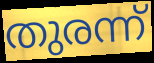
തുരന്ന്